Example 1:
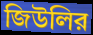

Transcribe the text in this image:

জিউলির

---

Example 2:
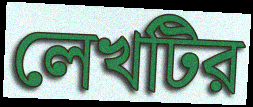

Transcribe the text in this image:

লেখটির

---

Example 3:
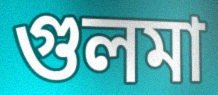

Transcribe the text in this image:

গুলমা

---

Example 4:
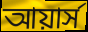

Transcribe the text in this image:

আয়ার্স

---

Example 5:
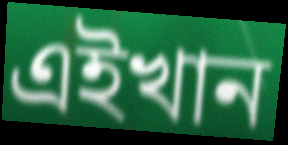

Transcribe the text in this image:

এইখান